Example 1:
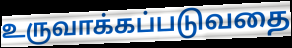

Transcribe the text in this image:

உருவாக்கப்படுவதை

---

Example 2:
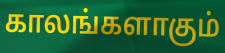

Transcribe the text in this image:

காலங்களாகும்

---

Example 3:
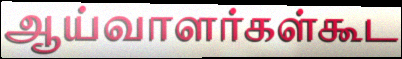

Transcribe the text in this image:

ஆய்வாளர்கள்கூட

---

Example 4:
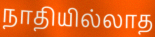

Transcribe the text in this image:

நாதியில்லாத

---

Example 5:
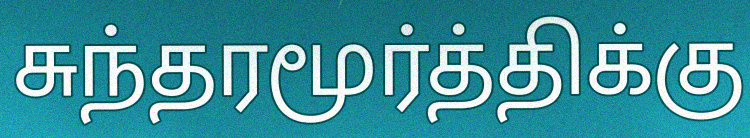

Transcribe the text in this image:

சுந்தரமூர்த்திக்கு